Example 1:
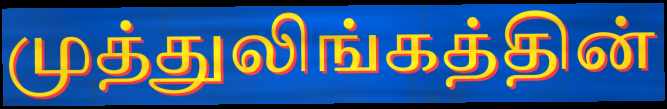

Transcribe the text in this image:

முத்துலிங்கத்தின்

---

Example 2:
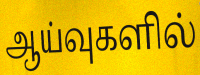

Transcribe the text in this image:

ஆய்வுகளில்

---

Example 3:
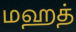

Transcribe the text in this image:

மஹத்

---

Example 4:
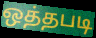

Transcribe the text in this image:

ஒத்தபடி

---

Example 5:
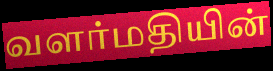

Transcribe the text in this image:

வளர்மதியின்